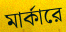
মার্কারে